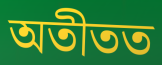
অতীতত